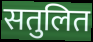
सतुलित